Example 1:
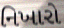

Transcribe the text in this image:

નિખારો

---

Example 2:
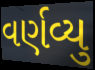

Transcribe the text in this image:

વર્ણવ્યુ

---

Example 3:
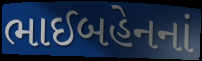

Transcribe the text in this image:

ભાઈબહેનનાં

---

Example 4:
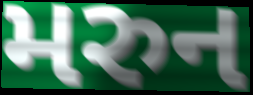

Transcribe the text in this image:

મરુન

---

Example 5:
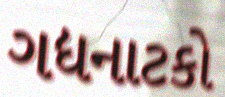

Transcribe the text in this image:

ગદ્યનાટકો